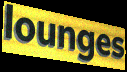
lounges